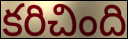
కరిచింది